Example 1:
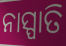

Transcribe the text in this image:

ନାସ୍ପାତି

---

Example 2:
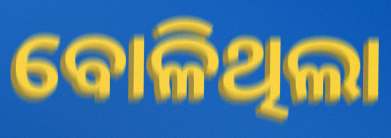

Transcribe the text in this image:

ବୋଳିଥିଲା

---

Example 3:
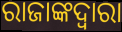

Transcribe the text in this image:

ରାଜାଙ୍କଦ୍ଵାରା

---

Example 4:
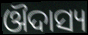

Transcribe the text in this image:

ଔଦାସ୍ୟ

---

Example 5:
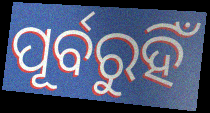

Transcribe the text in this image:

ପୂର୍ବରୁହିଁ